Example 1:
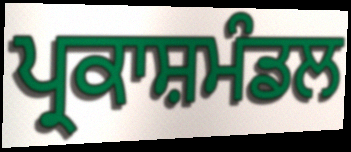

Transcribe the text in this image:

ਪ੍ਰਕਾਸ਼ਮੰਡਲ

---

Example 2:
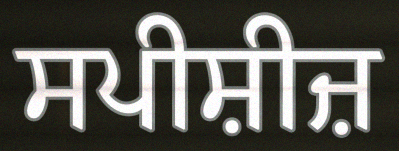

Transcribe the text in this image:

ਸਪੀਸ਼ੀਜ਼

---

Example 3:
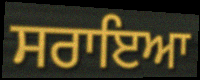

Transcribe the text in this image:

ਸਰਾਇਆ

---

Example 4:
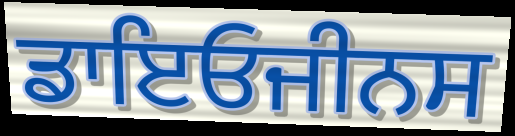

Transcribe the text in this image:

ਡਾਇਓਜੀਨਸ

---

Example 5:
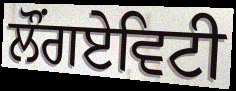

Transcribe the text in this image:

ਲੌਂਗਏਵਿਟੀ